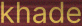
khade